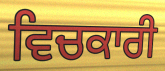
ਵਿਚਕਾਰੀ